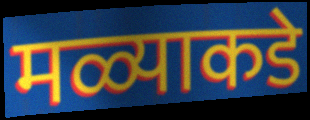
मळ्याकडे